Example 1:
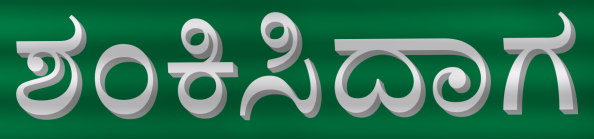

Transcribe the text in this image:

ಶಂಕಿಸಿದಾಗ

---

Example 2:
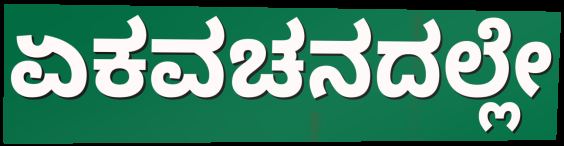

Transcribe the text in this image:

ಏಕವಚನದಲ್ಲೇ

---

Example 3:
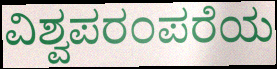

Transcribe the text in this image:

ವಿಶ್ವಪರಂಪರೆಯ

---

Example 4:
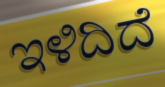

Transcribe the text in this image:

ಇಳಿದಿದೆ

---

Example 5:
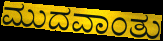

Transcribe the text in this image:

ಮುದವಾಂತು